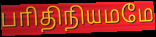
பரிதிநியமமே